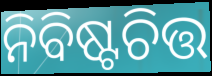
ନିବିଷ୍ଟଚିତ୍ତ